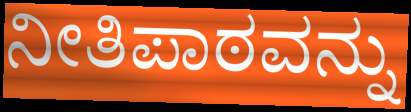
ನೀತಿಪಾಠವನ್ನು